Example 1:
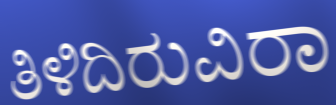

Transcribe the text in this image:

ತಿಳಿದಿರುವಿರಾ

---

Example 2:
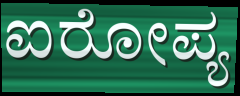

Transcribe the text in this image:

ಐರೋಪ್ಯ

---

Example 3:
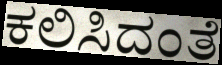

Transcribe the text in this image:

ಕಲಿಸಿದಂತೆ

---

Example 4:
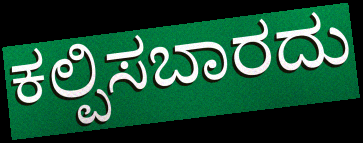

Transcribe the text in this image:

ಕಲ್ಪಿಸಬಾರದು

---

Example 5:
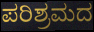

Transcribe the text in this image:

ಪರಿಶ್ರಮದ